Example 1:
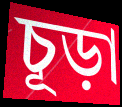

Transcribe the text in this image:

চূড়া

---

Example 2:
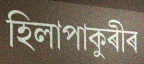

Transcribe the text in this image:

হিলাপাকুৰীৰ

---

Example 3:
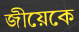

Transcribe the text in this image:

জীয়েকে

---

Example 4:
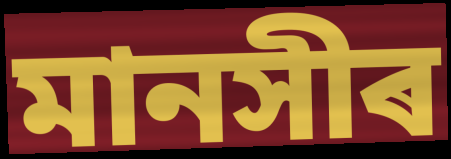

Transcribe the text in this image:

মানসীৰ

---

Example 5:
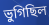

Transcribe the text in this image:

ভুগিছিল